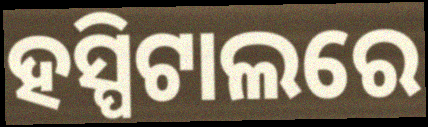
ହସ୍ପିଟାଲରେ